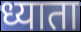
ध्याता